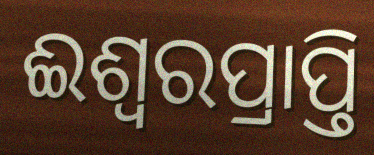
ଈଶ୍ଵରପ୍ରାପ୍ତି